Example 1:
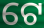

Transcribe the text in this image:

ଟେ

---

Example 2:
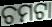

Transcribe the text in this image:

ଚମଟା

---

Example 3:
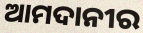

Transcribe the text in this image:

ଆମଦାନୀର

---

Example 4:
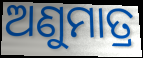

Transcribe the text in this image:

ଅଣୁମାତ୍ର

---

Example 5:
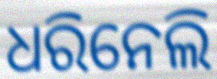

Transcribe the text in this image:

ଧରିନେଲି